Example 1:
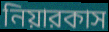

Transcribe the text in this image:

নিয়ারকাস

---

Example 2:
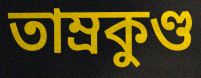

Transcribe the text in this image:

তাম্রকুণ্ড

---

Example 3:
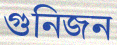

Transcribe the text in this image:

গুনিজন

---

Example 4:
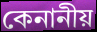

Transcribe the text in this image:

কেনানীয়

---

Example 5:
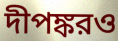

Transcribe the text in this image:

দীপঙ্করও